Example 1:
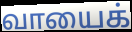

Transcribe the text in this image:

வாயைக்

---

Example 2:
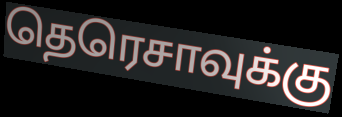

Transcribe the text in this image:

தெரெசாவுக்கு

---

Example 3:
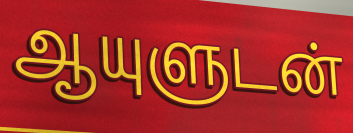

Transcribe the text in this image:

ஆயுளுடன்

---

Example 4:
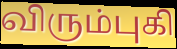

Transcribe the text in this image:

விரும்புகி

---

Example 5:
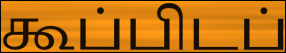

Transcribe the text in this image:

கூப்பிடப்